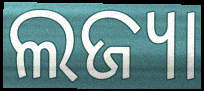
ଲଜ୍ୟା